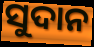
ସୁଦାନ